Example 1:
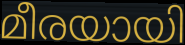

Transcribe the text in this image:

മീരയായി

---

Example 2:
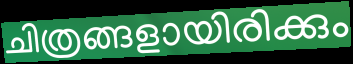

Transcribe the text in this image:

ചിത്രങ്ങളായിരിക്കും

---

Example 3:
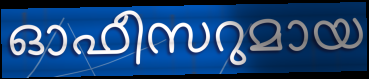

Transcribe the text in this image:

ഓഫീസറുമായ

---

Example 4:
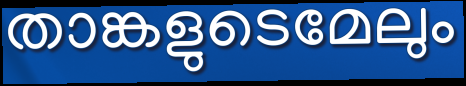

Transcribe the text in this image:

താങ്കളുടെമേലും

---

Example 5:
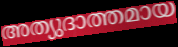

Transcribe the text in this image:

അത്യുദാത്തമായ